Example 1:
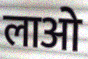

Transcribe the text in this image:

लाओ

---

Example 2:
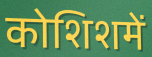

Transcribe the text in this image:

कोशिशमें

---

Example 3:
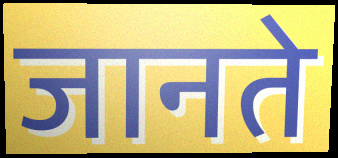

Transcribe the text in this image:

जानते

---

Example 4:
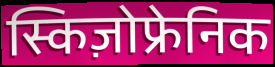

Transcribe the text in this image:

स्किज़ोफ्रेनिक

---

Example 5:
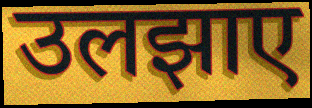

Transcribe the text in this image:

उलझाए